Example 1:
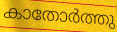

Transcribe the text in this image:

കാതോർത്തു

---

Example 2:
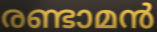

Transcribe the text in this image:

രണ്ടാമൻ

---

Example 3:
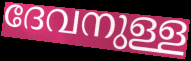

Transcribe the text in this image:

ദേവനുള്ള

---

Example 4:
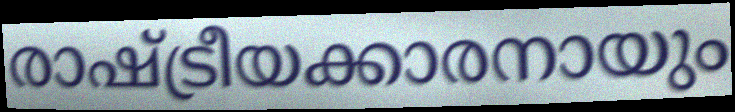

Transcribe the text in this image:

രാഷ്ട്രീയക്കാരനായും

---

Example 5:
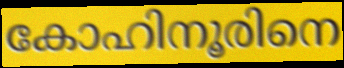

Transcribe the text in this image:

കോഹിനൂരിനെ